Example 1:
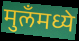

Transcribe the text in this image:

मुलँमध्ये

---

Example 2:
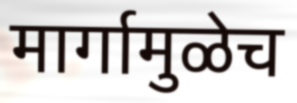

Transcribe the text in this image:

मार्गामुळेच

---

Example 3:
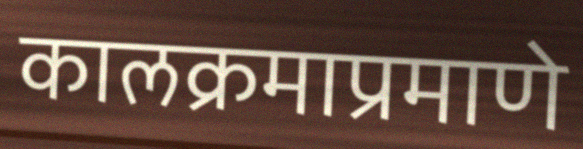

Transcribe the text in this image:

कालक्रमाप्रमाणे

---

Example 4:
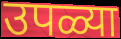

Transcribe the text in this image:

उपळ्या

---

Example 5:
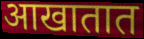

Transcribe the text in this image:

आखातात